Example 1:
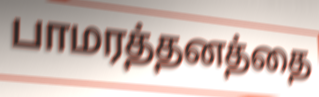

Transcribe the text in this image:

பாமரத்தனத்தை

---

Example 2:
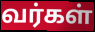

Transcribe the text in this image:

வர்கள்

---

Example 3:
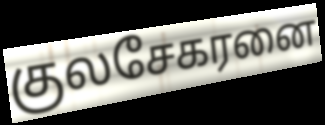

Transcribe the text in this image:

குலசேகரனை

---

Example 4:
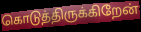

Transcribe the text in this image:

கொடுத்திருக்கிறேன்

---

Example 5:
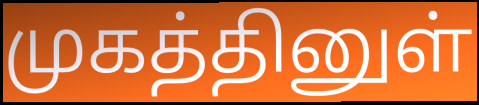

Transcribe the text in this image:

முகத்தினுள்